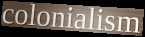
colonialism